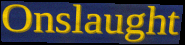
Onslaught